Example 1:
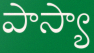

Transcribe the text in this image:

పాస్యా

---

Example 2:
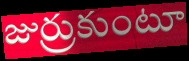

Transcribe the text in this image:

జుర్రుకుంటూ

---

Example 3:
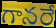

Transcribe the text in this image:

గానరే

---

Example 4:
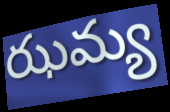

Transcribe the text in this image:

ఝమ్య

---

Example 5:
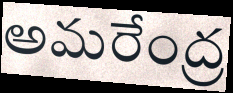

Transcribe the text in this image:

అమరేంద్ర